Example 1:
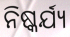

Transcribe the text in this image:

ନିଷ୍କର୍ଯ୍ୟ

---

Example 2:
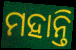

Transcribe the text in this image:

ମହାନ୍ତି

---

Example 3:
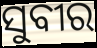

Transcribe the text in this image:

ସୁବୀର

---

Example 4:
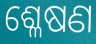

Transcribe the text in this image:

ଶ୍ଳେଷଣ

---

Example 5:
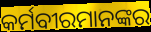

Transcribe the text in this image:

କର୍ମବୀରମାନଙ୍କର